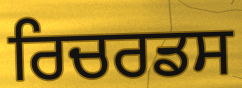
ਰਿਚਰਡਸ